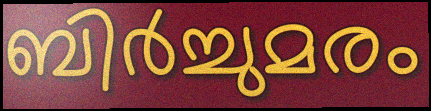
ബിർച്ചുമരം